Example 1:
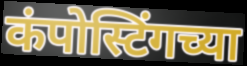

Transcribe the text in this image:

कंपोस्टिंगच्या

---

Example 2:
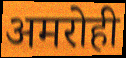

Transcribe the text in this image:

अमरोही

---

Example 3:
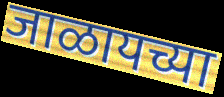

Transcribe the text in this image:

जाळायच्या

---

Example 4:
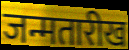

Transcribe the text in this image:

जन्मतारीख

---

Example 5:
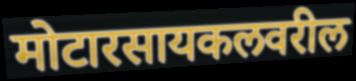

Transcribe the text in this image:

मोटारसायकलवरील